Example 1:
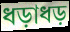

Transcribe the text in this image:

ধড়াধড়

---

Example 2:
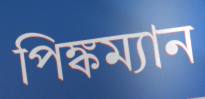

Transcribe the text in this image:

পিঙ্কম্যান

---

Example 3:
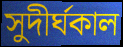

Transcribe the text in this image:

সুদীর্ঘকাল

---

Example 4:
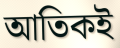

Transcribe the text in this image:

আতিকই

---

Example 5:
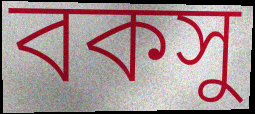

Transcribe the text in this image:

বকসু